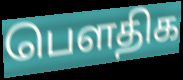
பௌதிக